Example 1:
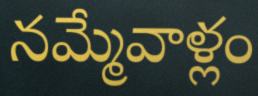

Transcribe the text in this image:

నమ్మేవాళ్లం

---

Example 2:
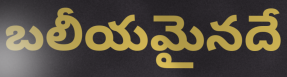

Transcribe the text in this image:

బలీయమైనదే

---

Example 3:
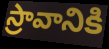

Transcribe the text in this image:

స్రావానికి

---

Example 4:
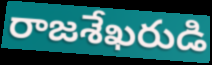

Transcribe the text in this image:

రాజశేఖరుడి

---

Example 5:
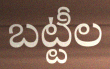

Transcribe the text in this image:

బట్టీల